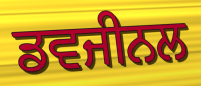
ਡਵਜੀਨਲ